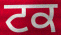
ਟਕ